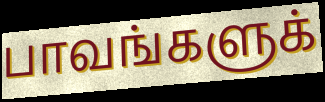
பாவங்களுக்